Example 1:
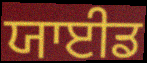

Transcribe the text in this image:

ਯਾਈਡ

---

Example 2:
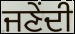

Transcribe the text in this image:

ਜਣੇਂਦੀ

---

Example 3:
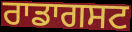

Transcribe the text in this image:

ਰਾਡਾਗਸਟ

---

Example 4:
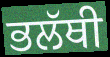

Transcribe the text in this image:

ਭਲੱਥੀ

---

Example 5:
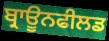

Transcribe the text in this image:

ਬ੍ਰਾਊਨਫੀਲਡ